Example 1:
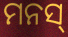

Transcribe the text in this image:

ମନସ୍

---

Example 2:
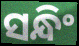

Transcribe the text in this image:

ସନ୍ଧିଂ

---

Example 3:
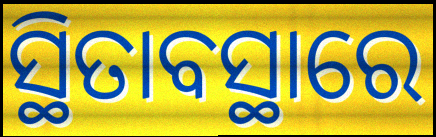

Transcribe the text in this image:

ସ୍ଥିତାବସ୍ଥାରେ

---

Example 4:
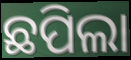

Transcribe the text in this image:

ଛପିଲା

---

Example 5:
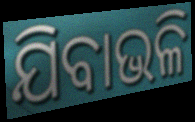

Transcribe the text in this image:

ଯିବାଭଳି